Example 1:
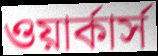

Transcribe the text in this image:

ওয়ার্কার্স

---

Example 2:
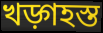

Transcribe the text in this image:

খড়্গহস্ত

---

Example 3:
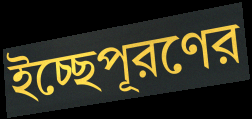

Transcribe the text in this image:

ইচ্ছেপূরণের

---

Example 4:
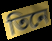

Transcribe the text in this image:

তিনে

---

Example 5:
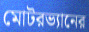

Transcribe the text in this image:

মোটরভ্যানের